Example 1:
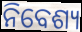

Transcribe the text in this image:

ନିବେଶ୍ୟ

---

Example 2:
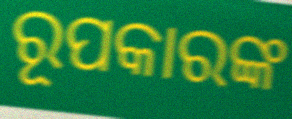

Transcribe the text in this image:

ରୂପକାରଙ୍କ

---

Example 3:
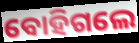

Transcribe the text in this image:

ବୋହିଗଲେ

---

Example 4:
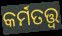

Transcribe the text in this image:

କର୍ମତତ୍ତ୍ୱ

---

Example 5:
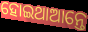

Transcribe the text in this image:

ହୋଇଥାଆନ୍ତେ